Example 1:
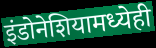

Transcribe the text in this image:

इंडोनेशियामध्येही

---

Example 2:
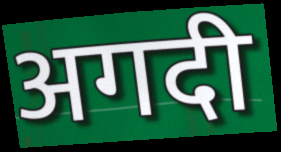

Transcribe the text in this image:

अगदी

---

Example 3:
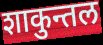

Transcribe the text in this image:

शाकुन्तल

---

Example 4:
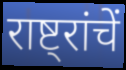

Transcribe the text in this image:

राष्ट्रांचें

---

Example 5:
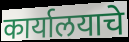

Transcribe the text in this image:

कार्यालयाचे